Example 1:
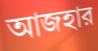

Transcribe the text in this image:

আজহার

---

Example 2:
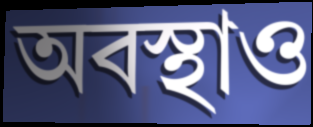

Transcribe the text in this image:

অবস্থাও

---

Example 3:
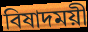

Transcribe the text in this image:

বিষাদময়ী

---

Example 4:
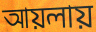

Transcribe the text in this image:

আয়লায়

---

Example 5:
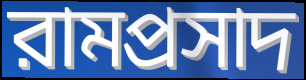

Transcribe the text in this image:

রামপ্রসাদ